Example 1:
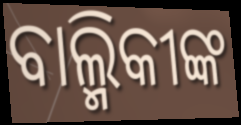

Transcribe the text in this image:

ବାଲ୍ମିକୀଙ୍କ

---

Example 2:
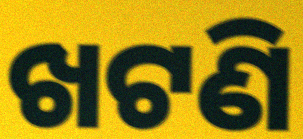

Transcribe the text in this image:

ଖଟଣି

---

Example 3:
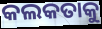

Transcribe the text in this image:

କଲକତାକୁ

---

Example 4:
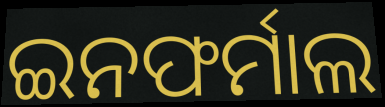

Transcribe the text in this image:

ଇନଫର୍ମାଲ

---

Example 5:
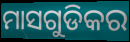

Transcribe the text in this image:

ମାସଗୁଡିକର